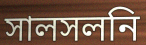
সালসলনি